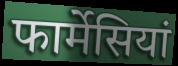
फार्मेसियां